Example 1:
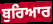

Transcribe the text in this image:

ਬੁਰਿਆਰ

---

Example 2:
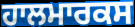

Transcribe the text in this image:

ਹਾਲਮਾਰਕਸ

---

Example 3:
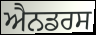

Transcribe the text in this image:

ਐਨਡਰਸ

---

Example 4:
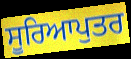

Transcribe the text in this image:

ਸੂਰਿਆਪੁਤਰ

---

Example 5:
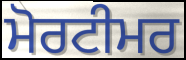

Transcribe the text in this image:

ਮੋਰਟੀਮਰ